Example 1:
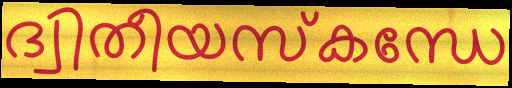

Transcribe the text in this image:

ദ്വിതീയസ്കന്ധേ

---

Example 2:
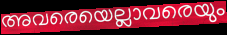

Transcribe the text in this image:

അവരെയെല്ലാവരെയും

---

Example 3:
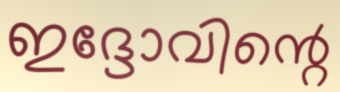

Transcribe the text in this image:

ഇദ്ദോവിന്റെ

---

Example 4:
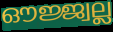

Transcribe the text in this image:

ഔജ്ജ്വല്ല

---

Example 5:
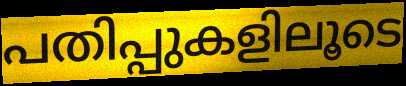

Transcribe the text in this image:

പതിപ്പുകളിലൂടെ